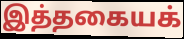
இத்தகையக்